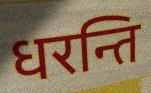
धरन्ति